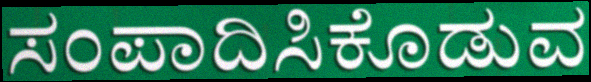
ಸಂಪಾದಿಸಿಕೊಡುವ